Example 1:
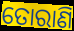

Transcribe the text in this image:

ତୋରାଣି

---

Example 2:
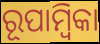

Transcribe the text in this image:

ରୂପାମ୍ବିକା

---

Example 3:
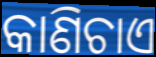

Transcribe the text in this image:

କାଣିଚାଏ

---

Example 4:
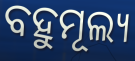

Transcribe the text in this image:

ବହୁମୂଲ୍ୟ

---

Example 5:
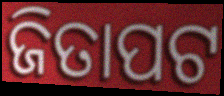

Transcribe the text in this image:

ଜିତାପଟ